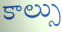
కాల్సు